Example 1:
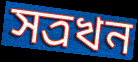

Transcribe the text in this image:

সত্ৰখন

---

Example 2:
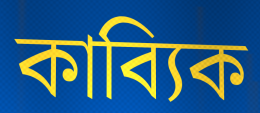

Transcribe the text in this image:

কাব্যিক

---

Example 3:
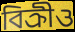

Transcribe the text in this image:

বিক্ৰীও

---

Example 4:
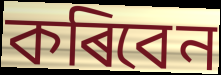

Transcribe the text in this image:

কৰিবেন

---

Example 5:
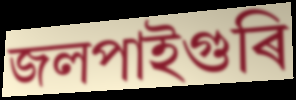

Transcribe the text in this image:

জলপাইগুৰি